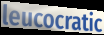
leucocratic